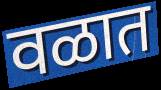
वळात